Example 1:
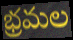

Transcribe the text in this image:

భ్రమల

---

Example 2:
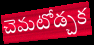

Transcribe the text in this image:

చెమటోడ్చక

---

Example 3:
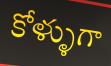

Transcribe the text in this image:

కోళ్ళుగా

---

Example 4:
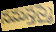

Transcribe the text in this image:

నమస్తస్మై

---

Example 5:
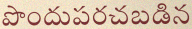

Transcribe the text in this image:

పొందుపరచబడిన